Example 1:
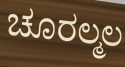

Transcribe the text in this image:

ಚೂರಲ್ಮಲ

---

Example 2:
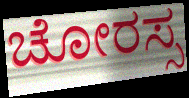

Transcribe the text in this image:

ಚೋರಸ್ಸ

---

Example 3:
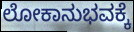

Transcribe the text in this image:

ಲೋಕಾನುಭವಕ್ಕೆ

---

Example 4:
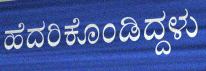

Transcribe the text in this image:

ಹೆದರಿಕೊಂಡಿದ್ದಳು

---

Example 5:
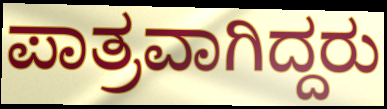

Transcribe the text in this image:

ಪಾತ್ರವಾಗಿದ್ದರು